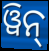
ୱିନ୍